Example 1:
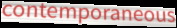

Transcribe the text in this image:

contemporaneous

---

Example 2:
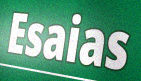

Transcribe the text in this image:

Esaias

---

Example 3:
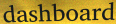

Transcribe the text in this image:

dashboard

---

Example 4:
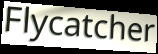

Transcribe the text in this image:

Flycatcher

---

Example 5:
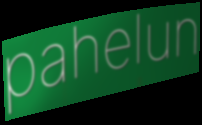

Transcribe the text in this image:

pahelun